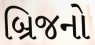
બ્રિજનો